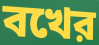
বখের